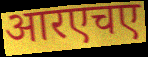
आरएचए